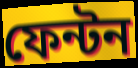
ফেন্টন